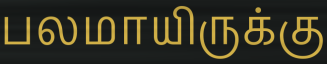
பலமாயிருக்கு